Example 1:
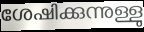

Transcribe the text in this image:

ശേഷിക്കുന്നുള്ളു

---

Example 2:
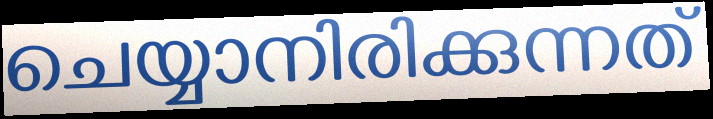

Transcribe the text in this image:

ചെയ്യാനിരിക്കുന്നത്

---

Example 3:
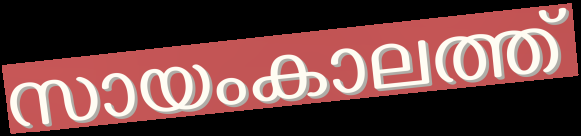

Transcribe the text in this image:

സായംകാലത്ത്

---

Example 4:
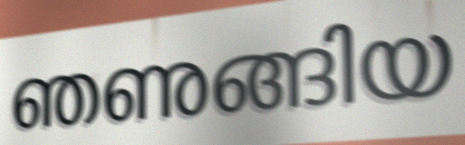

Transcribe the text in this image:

ഞണുങ്ങിയ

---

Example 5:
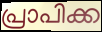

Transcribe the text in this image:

പ്രാപിക്ക